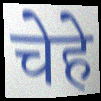
चेहे